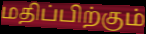
மதிப்பிற்கும்